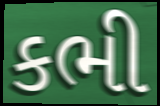
કભી